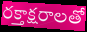
రక్తాక్షరాలతో